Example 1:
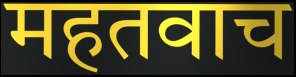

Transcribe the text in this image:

महतवाच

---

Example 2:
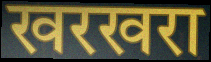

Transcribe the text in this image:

खरखरा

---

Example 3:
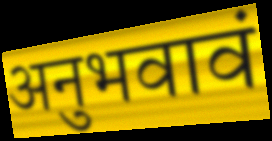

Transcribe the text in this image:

अनुभवावं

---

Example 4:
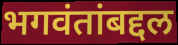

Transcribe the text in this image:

भगवंतांबद्दल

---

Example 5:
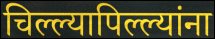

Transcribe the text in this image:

चिल्ल्यापिल्ल्यांना